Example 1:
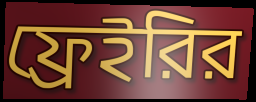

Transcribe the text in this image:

ফ্রেইরির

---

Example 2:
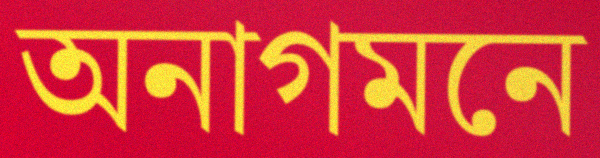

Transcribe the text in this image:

অনাগমনে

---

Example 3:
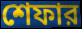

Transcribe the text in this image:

শেফার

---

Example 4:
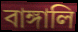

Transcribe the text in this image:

বাঙ্গালি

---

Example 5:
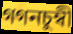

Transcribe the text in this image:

গগনচুম্বী